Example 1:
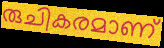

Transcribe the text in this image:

രുചികരമാണ്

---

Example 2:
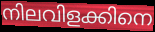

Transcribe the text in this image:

നിലവിളക്കിനെ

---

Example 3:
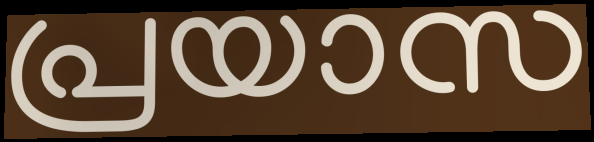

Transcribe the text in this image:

പ്രയാസ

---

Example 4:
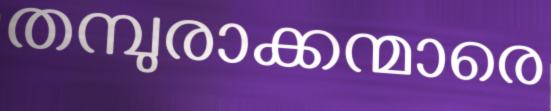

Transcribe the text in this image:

തമ്പുരാക്കന്മാരെ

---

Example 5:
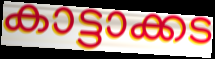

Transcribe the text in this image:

കാട്ടാക്കട